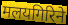
मलयगिरिने